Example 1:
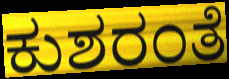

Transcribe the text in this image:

ಕುಶರಂತೆ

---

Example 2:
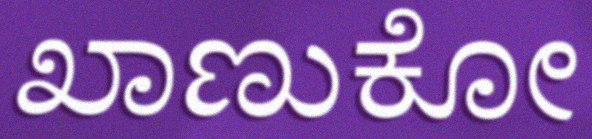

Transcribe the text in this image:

ಖಾಣುಕೋ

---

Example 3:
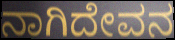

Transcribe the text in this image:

ನಾಗಿದೇವನ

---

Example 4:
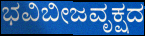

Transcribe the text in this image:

ಭವಿಬೀಜವೃಕ್ಷದ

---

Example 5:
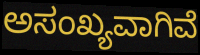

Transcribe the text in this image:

ಅಸಂಖ್ಯವಾಗಿವೆ